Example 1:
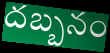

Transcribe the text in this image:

దబ్బనం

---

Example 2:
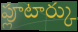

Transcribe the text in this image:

ప్లూటార్కు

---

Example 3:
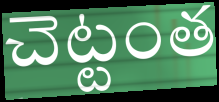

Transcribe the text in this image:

చెట్టంత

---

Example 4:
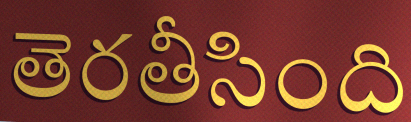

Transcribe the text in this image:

తెరతీసింది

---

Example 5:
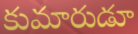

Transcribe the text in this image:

కుమారుడూ